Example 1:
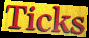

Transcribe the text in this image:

Ticks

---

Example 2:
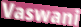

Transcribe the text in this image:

Vaswani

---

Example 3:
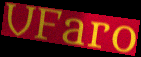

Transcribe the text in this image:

UFaro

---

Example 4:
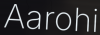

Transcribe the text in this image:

Aarohi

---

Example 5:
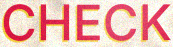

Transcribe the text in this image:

CHECK